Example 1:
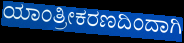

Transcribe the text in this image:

ಯಾಂತ್ರೀಕರಣದಿಂದಾಗಿ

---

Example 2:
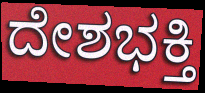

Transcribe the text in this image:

ದೇಶಭಕ್ತಿ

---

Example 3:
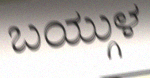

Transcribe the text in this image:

ಬಯ್ಗುಳ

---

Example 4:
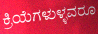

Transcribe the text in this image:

ಕ್ರಿಯೆಗಳುಳ್ಳವರೂ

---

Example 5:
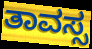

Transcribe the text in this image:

ತಾವಸ್ಸ